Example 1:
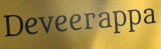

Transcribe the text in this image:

Deveerappa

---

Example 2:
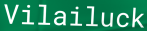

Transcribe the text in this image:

Vilailuck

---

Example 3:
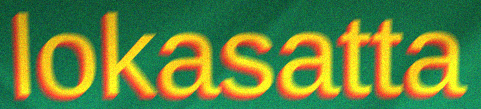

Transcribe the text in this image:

lokasatta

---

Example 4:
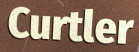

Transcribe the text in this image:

Curtler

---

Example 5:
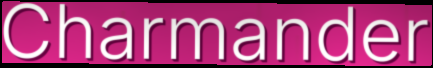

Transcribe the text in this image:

Charmander